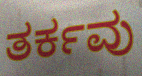
ತರ್ಕವು